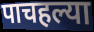
पाचहल्या